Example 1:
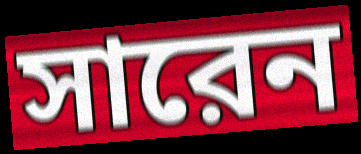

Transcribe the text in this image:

সারেন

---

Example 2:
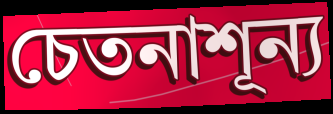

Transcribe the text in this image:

চেতনাশূন্য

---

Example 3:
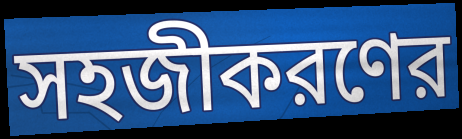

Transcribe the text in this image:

সহজীকরণের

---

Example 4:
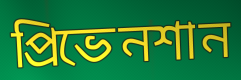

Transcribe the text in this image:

প্রিভেনশান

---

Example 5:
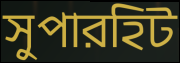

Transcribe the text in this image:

সুপারহিট